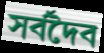
সর্বদৈব